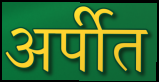
अर्पीत